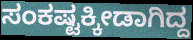
ಸಂಕಷ್ಟಕ್ಕೀಡಾಗಿದ್ದ